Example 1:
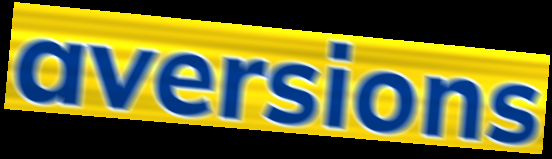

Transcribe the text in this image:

aversions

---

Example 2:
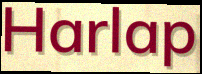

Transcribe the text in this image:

Harlap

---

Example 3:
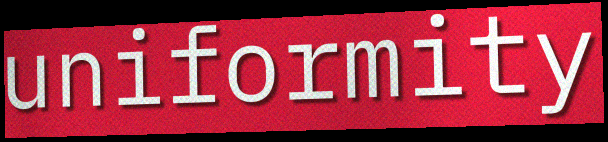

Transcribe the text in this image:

uniformity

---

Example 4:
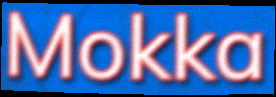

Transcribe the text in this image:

Mokka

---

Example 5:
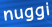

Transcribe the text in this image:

nuggi